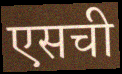
एसची